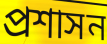
প্ৰশাসন